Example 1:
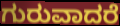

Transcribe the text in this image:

ಗುರುವಾದರೆ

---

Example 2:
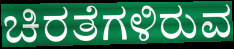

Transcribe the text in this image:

ಚಿರತೆಗಳಿರುವ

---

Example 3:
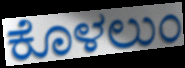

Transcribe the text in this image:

ಕೊಳಲುಂ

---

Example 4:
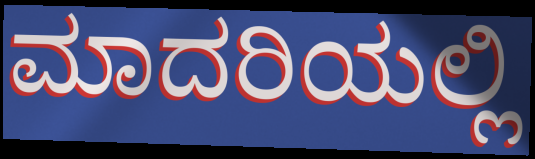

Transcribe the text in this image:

ಮಾದರಿಯಲ್ಲಿ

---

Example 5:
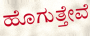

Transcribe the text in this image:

ಹೊಗುತ್ತೇವೆ